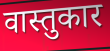
वास्तुकार